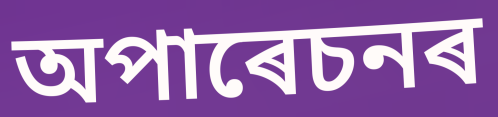
অপাৰেচনৰ